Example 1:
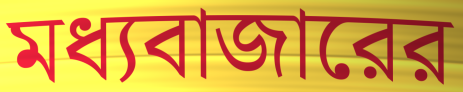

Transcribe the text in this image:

মধ্যবাজারের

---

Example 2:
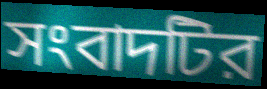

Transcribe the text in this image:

সংবাদটির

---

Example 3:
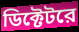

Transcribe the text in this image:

ডিক্টেটরে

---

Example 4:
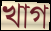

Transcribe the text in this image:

খাগ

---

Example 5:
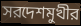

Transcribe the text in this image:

সরদেশমুখীর